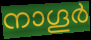
നാഗൂർ